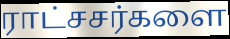
ராட்சசர்களை